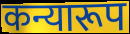
कन्यारूप